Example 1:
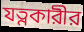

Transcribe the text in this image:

যত্নকারীর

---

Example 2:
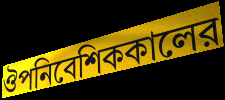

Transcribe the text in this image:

ঔপনিবেশিককালের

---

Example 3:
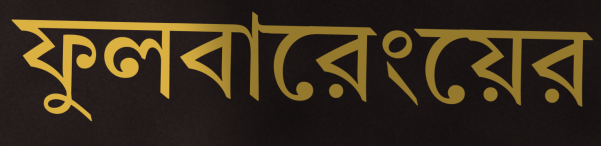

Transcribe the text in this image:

ফুলবারেংয়ের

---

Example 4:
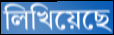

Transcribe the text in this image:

লিখিয়েছে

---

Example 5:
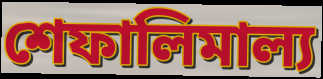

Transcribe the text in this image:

শেফালিমাল্য